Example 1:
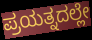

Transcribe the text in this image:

ಪ್ರಯತ್ನದಲ್ಲೇ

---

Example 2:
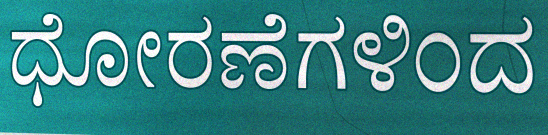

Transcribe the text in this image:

ಧೋರಣೆಗಳಿಂದ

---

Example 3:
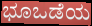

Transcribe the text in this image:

ಭೂಒಡೆಯ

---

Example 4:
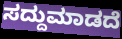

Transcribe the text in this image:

ಸದ್ದುಮಾಡದೆ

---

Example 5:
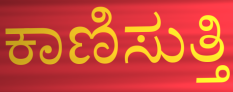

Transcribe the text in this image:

ಕಾಣಿಸುತ್ತಿ